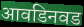
आवडिनवड